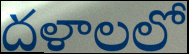
దళాలలో